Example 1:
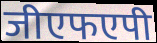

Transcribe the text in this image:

जीएफएपी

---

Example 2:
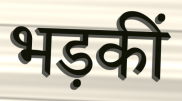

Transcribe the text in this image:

भड़कीं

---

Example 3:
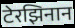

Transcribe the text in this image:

टेरझिनान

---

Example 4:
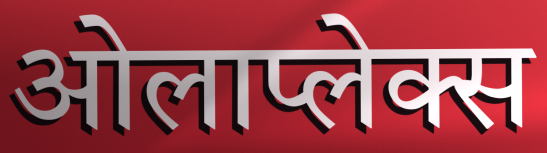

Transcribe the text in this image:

ओलाप्लेक्स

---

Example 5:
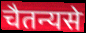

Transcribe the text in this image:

चैतन्यसे